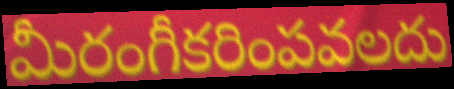
మీరంగీకరింపవలదు